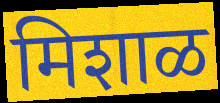
मिशाळ